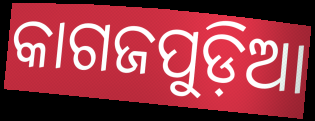
କାଗଜପୁଡ଼ିଆ